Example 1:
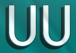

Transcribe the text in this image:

UU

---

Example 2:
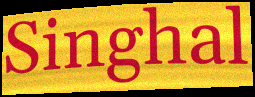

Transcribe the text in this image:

Singhal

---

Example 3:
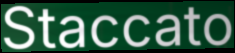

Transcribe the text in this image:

Staccato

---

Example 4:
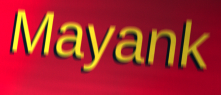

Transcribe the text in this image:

Mayank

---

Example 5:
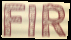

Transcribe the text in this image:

FIR